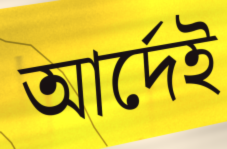
আর্দেই